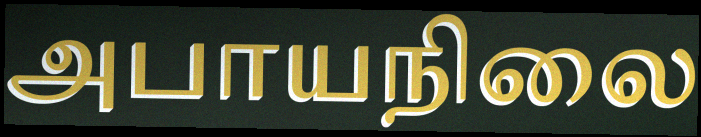
அபாயநிலை